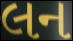
લન